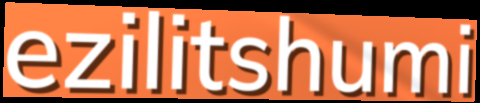
ezilitshumi